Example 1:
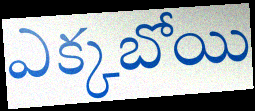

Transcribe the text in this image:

ఎక్కబోయి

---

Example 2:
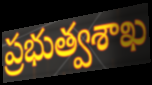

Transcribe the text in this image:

ప్రభుత్వశాఖ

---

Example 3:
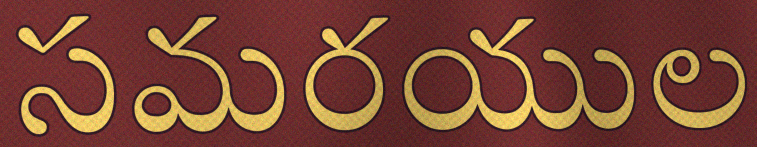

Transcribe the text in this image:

సమరయుల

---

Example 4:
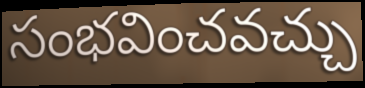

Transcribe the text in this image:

సంభవించవచ్చు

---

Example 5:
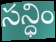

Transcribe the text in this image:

సన్ధిం